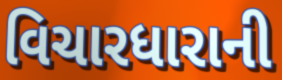
વિચારધારાની